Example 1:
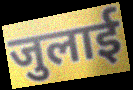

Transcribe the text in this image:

जुलाई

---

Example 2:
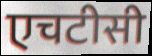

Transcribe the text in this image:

एचटीसी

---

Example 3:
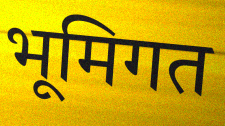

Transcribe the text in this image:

भूमिगत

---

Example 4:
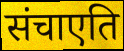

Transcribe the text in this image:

संचाएति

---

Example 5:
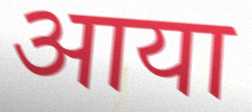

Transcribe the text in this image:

आया